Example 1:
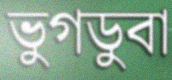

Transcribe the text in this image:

ভুগডুবা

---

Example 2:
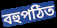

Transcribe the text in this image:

বহুপঠিত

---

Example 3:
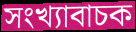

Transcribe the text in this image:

সংখ্যাবাচক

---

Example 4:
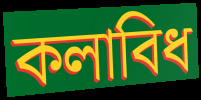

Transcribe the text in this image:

কলাবিধ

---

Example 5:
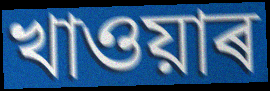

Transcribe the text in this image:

খাওয়াৰ